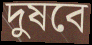
দুষবে